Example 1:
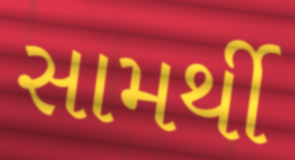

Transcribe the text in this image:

સામર્થી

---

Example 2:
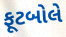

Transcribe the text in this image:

ફૂટબોલે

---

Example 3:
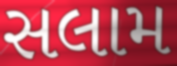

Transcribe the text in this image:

સલામ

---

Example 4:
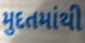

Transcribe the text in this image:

મુદતમાંથી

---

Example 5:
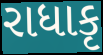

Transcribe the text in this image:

રાધાકૃ